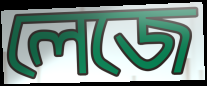
লেজে